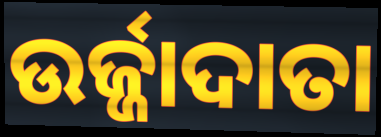
ଉର୍ଜ୍ଜାଦାତା